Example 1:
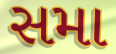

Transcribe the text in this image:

સમા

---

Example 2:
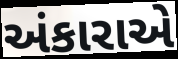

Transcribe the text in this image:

અંકારાએ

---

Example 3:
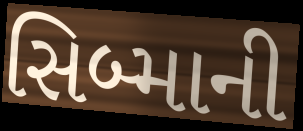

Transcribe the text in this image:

સિબ્માની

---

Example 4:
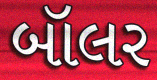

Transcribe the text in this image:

બૉલર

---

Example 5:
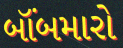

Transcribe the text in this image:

બૉંબમારો